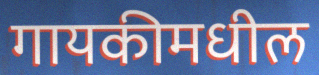
गायकीमधील